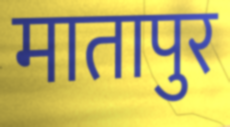
मातापुर